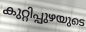
കുറ്റിപ്പുഴയുടെ